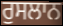
ਰੁਸਲਾਨ